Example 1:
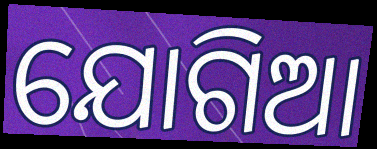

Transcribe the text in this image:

ଯୋଗିଆ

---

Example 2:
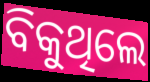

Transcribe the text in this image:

ବିକୁଥିଲେ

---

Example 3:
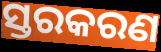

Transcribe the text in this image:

ସ୍ତରକରଣ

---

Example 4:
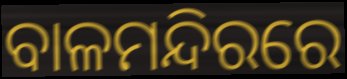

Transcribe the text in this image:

ବାଳମନ୍ଦିରରେ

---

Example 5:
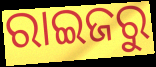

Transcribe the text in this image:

ରାଇଜରୁ